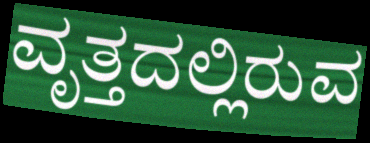
ವೃತ್ತದಲ್ಲಿರುವ